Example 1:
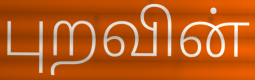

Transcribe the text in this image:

புறவின்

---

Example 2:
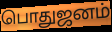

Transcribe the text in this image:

பொதுஜனம்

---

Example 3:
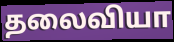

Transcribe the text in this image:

தலைவியா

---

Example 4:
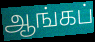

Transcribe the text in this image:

ஆங்கப்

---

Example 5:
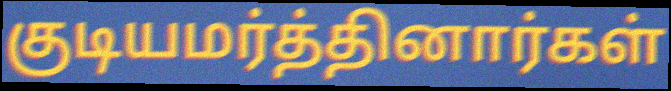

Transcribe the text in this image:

குடியமர்த்தினார்கள்